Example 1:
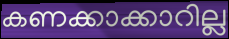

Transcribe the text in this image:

കണക്കാക്കാറില്ല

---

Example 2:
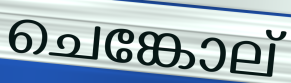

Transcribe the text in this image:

ചെങ്കോല്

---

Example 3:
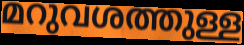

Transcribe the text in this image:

മറുവശത്തുള്ള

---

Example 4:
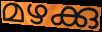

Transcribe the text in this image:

മഴക്കു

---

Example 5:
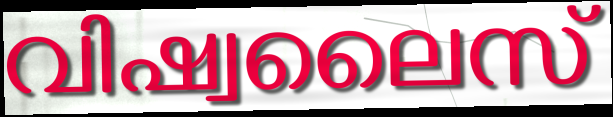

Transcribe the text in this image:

വിഷ്വലൈസ്